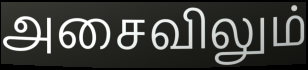
அசைவிலும்